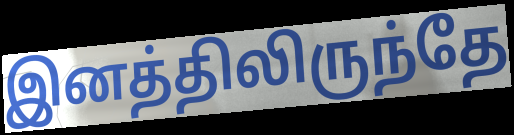
இனத்திலிருந்தே